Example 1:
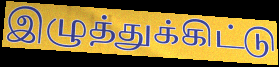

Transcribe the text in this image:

இழுத்துக்கிட்டு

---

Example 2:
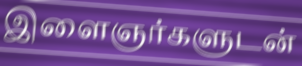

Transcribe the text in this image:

இளைஞர்களுடன்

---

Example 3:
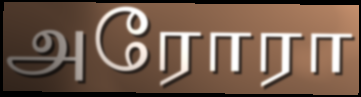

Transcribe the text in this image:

அரோரா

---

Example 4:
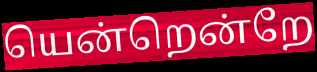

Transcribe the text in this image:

யென்றென்றே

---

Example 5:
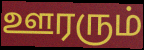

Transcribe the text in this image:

ஊரரும்